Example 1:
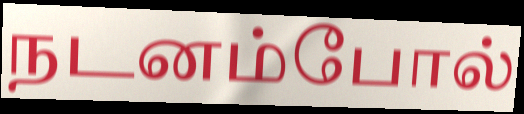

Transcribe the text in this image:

நடனம்போல்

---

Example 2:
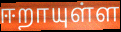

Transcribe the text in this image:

ஈறாயுள்ள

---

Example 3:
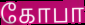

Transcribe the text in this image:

கோபா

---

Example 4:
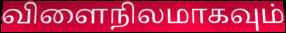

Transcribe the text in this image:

விளைநிலமாகவும்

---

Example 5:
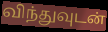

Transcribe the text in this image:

விந்துவுடன்